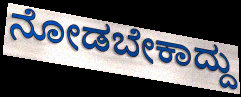
ನೋಡಬೇಕಾದ್ದು